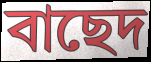
বাছেদ